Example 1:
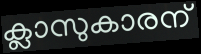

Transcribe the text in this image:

ക്ലാസുകാരന്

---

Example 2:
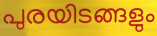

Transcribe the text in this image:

പുരയിടങ്ങളും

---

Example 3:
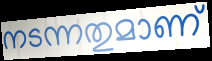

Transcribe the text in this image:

നടന്നതുമാണ്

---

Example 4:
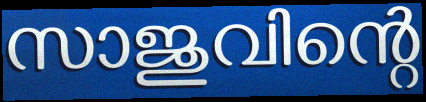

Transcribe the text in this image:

സാജുവിന്റെ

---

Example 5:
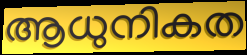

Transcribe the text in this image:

ആധുനികത